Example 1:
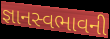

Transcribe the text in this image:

જ્ઞાનસ્વભાવની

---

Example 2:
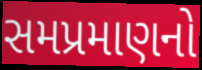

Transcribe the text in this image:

સમપ્રમાણનો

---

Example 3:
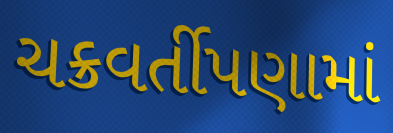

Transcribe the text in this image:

ચક્રવર્તીપણામાં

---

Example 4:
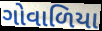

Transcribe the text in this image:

ગોવાળિયા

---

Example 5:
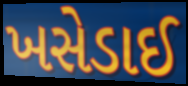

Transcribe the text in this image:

ખસેડાઈ